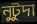
নুটুদা